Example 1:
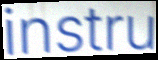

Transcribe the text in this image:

instru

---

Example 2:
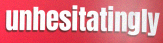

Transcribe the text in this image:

unhesitatingly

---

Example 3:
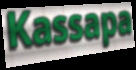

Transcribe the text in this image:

Kassapa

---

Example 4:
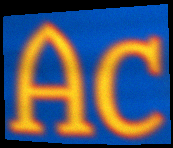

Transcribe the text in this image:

Ac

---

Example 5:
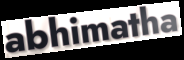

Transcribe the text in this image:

abhimatha